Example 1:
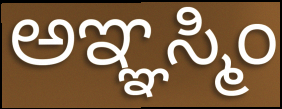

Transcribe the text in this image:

ಅಞ್ಞಸ್ಮಿಂ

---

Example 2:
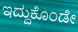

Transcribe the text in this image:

ಇದ್ದುಕೊಂಡೇ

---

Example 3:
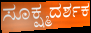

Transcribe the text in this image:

ಸೂಕ್ಷ್ಮದರ್ಶಕ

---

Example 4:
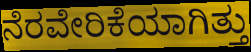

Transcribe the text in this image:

ನೆರವೇರಿಕೆಯಾಗಿತ್ತು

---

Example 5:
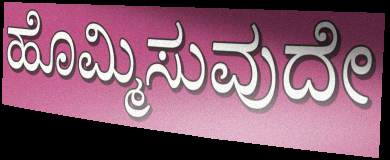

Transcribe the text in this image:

ಹೊಮ್ಮಿಸುವುದೇ